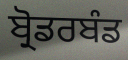
ਬ੍ਰੋਡਰਬੰਡ